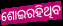
ଶୋଇରହିଥିବ